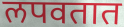
लपवतात